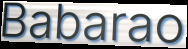
Babarao